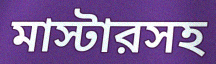
মাস্টারসহ